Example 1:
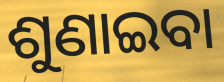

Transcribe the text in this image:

ଶୁଣାଇବା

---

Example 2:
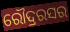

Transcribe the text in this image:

ରୌଦ୍ରରସର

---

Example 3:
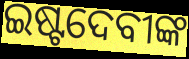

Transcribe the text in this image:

ଇଷ୍ଟଦେବୀଙ୍କ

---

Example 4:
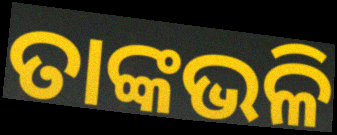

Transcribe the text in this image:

ତାଙ୍କଭଳି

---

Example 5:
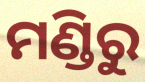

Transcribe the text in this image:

ମଣ୍ଡିରୁ